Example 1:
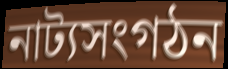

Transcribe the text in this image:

নাট্যসংগঠন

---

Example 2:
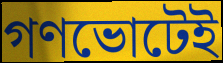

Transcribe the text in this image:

গণভোটেই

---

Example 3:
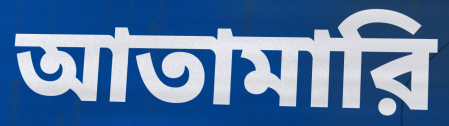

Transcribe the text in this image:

আতামারি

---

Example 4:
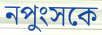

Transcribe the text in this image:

নপুংসকে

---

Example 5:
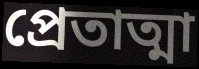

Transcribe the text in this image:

প্রেতাত্মা